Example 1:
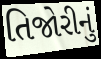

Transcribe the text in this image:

તિજોરીનું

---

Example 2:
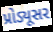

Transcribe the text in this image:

પ્રોડ્યૂસર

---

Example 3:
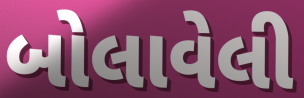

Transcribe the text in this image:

બોલાવેલી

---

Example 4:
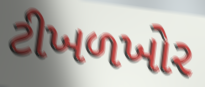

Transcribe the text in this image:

ટીખળખોર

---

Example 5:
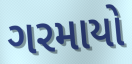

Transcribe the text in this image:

ગરમાયો